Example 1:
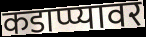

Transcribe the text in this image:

कडाप्प्यावर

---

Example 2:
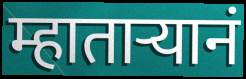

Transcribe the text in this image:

म्हाताऱ्यानं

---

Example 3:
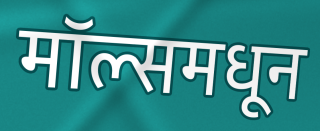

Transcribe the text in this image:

मॉल्समधून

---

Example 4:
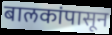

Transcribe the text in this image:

बालकांपासून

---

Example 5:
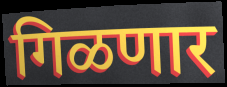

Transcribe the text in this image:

गिळणार